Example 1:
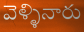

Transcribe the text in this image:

వెళ్ళినారు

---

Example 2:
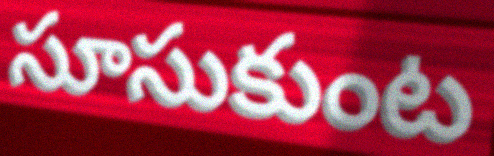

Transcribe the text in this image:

సూసుకుంట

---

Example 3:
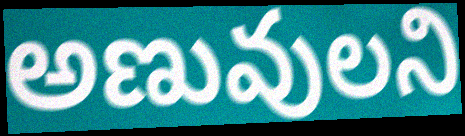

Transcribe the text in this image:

అణువులని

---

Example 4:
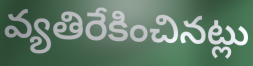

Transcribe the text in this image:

వ్యతిరేకించినట్లు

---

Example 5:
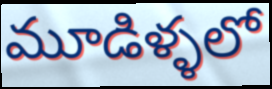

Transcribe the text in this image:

మూడిళ్ళలో